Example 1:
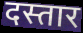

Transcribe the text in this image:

दस्तार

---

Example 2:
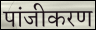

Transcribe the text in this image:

पांजीकरण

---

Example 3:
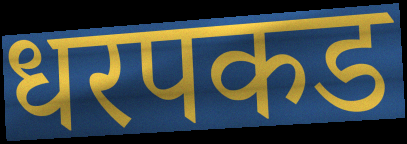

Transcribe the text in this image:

धरपकड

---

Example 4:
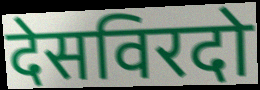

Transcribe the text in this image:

देसविरदो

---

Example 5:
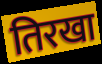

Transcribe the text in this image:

तिरखा